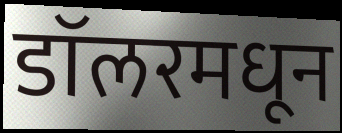
डॉलरमधून